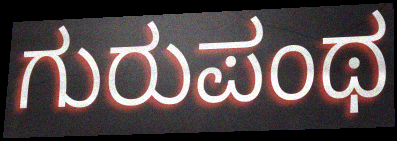
ಗುರುಪಂಥ